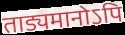
ताड्यमानोऽपि